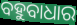
ବହୁବାଧାର